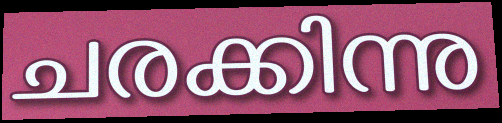
ചരക്കിന്നു